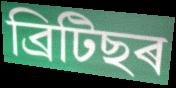
ব্ৰিটিছৰ